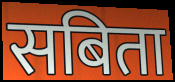
सबिता